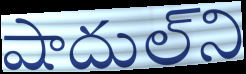
షాదుల్‌ని